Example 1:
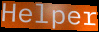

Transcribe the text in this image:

Helper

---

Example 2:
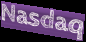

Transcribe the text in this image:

Nasdaq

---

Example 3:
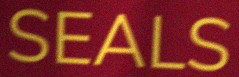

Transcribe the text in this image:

SEALS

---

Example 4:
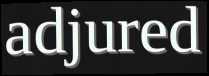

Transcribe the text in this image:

adjured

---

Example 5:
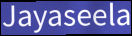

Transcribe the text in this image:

Jayaseela